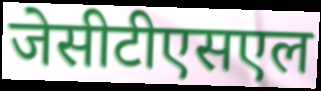
जेसीटीएसएल